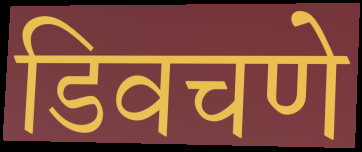
डिवचणे